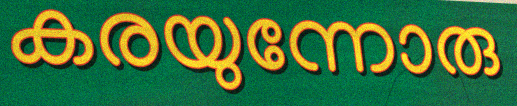
കരയുന്നോരു